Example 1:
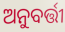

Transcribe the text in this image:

ଅନୁବର୍ତ୍ତୀ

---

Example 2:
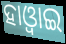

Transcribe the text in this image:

ହାଓ୍ୱାଇ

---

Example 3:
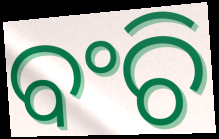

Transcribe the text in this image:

ବଂଚି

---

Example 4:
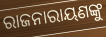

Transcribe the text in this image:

ରାଜନାରାୟଣଙ୍କୁ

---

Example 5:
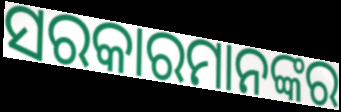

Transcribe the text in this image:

ସରକାରମାନଙ୍କର